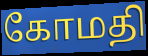
கோமதி